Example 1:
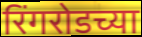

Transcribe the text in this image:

रिंगरोडच्या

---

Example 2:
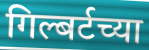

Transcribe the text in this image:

गिल्बर्टच्या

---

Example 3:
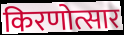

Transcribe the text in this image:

किरणोत्सार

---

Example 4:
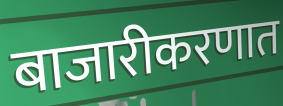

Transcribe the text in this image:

बाजारीकरणात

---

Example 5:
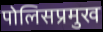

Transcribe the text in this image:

पोलिसप्रमुख